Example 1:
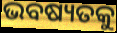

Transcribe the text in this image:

ଭବଷ୍ୟତକୁ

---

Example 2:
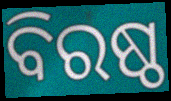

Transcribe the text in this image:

ବିରଷ୍ଠ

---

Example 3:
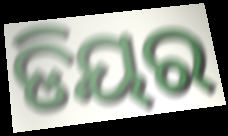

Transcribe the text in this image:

ଡିୟର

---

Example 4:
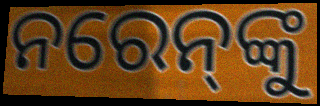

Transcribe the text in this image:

ନରେନ୍‍ଙ୍କୁ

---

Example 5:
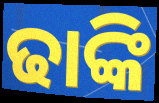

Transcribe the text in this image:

ଢାଙ୍କି